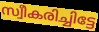
സ്വീകരിച്ചിട്ടേ